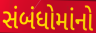
સંબંધોમાંનો